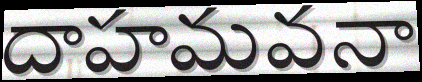
దాహమవనా